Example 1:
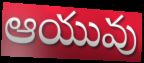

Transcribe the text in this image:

ఆయువు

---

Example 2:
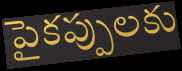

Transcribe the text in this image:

పైకప్పులకు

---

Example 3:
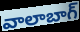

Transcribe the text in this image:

వాలాబాగ్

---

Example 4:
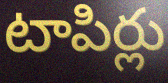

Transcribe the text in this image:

టాపిర్లు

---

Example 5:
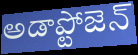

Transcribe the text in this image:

అడాప్టోజెన్